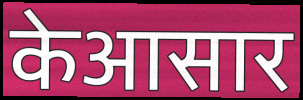
केआसार